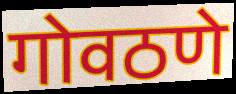
गोवठणे